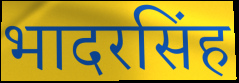
भादरसिंह